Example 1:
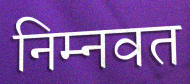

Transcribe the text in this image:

निम्नवत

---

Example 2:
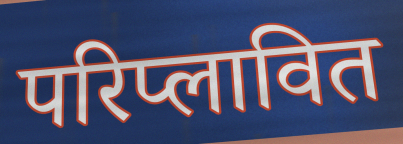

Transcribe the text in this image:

परिप्लावित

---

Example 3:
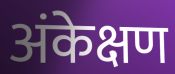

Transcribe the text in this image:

अंकेक्षण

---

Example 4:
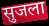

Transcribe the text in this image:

सुजला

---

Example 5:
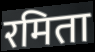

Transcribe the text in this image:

रमिता